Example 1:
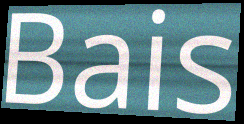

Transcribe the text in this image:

Bais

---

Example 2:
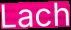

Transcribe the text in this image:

Lach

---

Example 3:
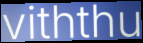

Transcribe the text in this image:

viththu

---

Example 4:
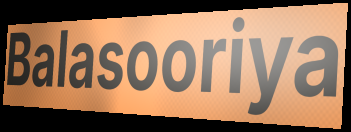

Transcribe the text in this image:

Balasooriya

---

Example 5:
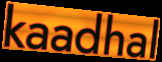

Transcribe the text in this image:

kaadhal